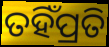
ତହିଁପ୍ରତି